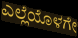
ಎಲ್ಲೆಯೊಳಗೇ